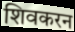
शिवकरन